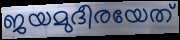
ജയമുദീരയേത്